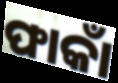
ଫାକାଁ